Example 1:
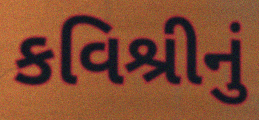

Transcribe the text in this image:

કવિશ્રીનું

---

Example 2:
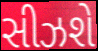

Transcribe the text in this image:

સીઝશે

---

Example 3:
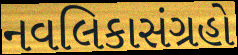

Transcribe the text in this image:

નવલિકાસંગ્રહો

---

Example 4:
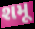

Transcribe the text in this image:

શમૂ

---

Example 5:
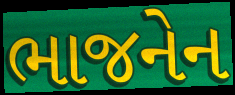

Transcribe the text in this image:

ભાજનેન